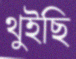
থুইছি